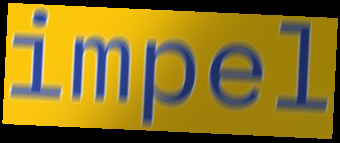
impel